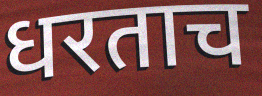
धरताच